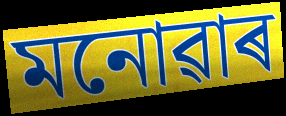
মনোৱাৰ